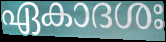
ഏകാദശഃ